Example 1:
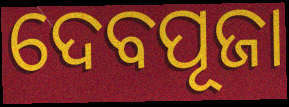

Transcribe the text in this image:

ଦେବପୂଜା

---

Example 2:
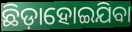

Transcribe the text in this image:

ଛିଡ଼ାହୋଇଯିବା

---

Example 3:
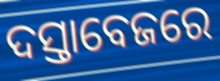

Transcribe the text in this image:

ଦସ୍ତାବେଜରେ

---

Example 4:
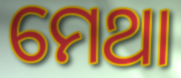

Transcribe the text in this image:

ମେଥା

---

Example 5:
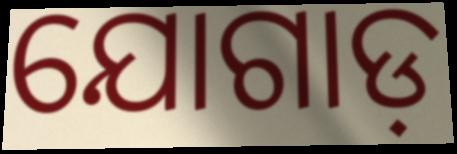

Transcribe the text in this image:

ଯୋଗାଡ଼